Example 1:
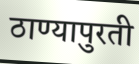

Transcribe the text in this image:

ठाण्यापुरती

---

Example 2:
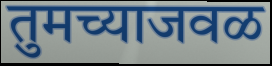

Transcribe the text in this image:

तुमच्याजवळ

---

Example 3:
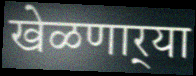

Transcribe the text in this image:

खेळणार्या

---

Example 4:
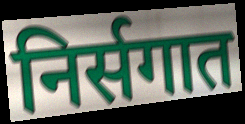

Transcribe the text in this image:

निर्सगात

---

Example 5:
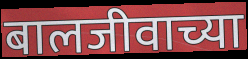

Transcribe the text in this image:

बालजीवाच्या